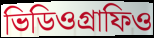
ভিডিওগ্রাফিও